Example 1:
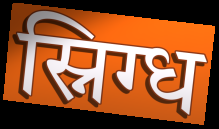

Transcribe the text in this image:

स्निग्ध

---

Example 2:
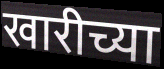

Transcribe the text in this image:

खारीच्या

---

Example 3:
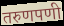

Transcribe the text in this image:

तरुणपणी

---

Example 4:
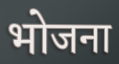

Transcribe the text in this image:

भोजना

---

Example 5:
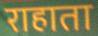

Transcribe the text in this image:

राहाता